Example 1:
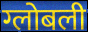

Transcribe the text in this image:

ग्लोबली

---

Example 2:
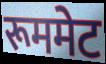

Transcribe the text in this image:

रूममेट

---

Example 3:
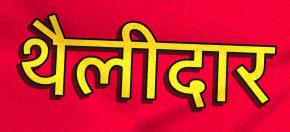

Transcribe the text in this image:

थैलीदार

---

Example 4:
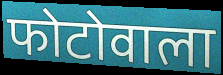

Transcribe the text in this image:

फोटोवाला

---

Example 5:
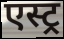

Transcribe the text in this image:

एस्ट्र